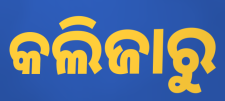
କଲିଜାରୁ